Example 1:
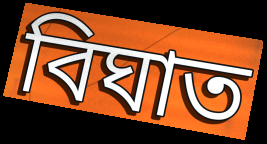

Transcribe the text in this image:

বিঘাত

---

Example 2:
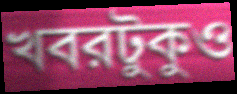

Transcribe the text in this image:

খবরটুকুও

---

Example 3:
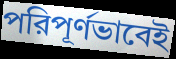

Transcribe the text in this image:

পরিপূর্ণভাবেই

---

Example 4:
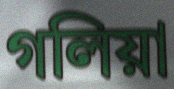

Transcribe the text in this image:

গলিয়া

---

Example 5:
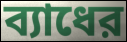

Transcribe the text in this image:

ব্যাধের